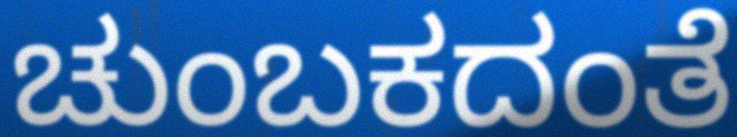
ಚುಂಬಕದಂತೆ